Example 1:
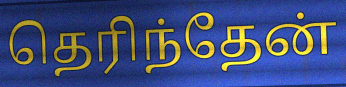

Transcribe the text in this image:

தெரிந்தேன்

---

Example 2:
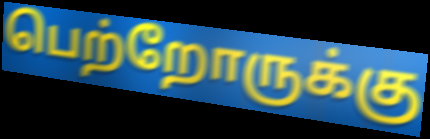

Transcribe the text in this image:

பெற்றோருக்கு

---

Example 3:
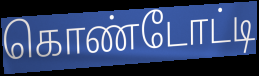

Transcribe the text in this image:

கொண்டோட்டி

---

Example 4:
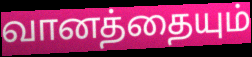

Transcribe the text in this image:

வானத்தையும்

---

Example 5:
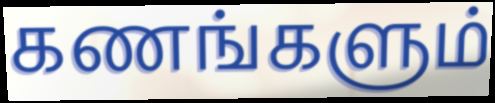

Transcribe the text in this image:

கணங்களும்